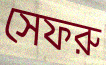
সেফরু